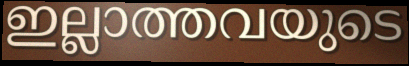
ഇല്ലാത്തവയുടെ